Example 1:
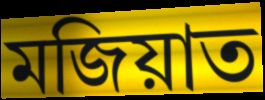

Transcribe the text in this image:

মজিয়াত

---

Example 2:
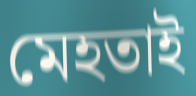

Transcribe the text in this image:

মেহতাই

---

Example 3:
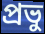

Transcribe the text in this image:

প্ৰভু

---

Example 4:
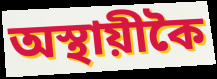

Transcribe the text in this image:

অস্থায়ীকৈ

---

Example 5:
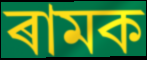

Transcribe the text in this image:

ৰামক